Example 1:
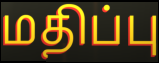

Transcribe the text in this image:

மதிப்பு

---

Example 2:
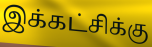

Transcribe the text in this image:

இக்கட்சிக்கு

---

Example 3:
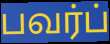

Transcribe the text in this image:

பவர்ப்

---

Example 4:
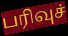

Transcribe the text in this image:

பரிவுச்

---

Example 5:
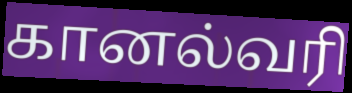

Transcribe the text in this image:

கானல்வரி